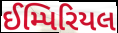
ઈમ્પિરિયલ